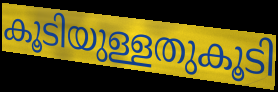
കൂടിയുള്ളതുകൂടി